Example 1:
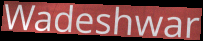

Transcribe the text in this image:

Wadeshwar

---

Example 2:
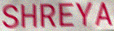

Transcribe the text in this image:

SHREYA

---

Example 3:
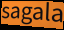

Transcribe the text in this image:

sagala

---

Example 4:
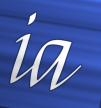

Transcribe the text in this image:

ia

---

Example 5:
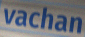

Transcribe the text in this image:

vachan